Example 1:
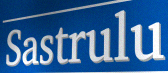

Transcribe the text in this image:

Sastrulu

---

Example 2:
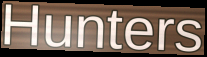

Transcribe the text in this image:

Hunters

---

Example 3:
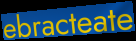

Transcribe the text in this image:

ebracteate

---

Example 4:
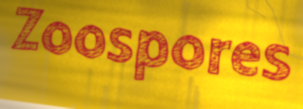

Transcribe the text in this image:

Zoospores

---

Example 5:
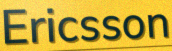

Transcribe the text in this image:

Ericsson